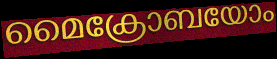
മൈക്രോബയോം